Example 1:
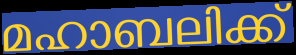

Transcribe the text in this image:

മഹാബലിക്ക്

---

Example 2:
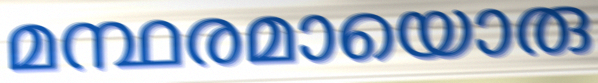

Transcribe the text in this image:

മന്ഥരമായൊരു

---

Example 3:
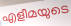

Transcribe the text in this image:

എളീമയുടെ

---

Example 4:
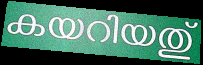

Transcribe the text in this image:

കയറിയതു്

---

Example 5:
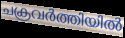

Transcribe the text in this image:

ചക്രവർത്തിയിൽ